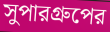
সুপারগ্রুপের